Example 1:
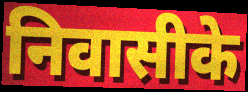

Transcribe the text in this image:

निवासीके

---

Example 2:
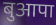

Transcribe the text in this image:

बुआपा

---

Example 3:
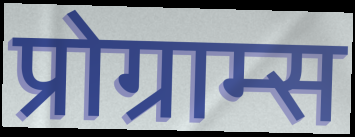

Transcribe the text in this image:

प्रोग्राम्स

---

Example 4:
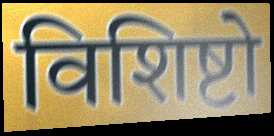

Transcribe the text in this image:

विशिष्टो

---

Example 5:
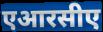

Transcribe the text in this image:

एआरसीए